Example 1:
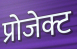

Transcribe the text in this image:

प्रोजेक्ट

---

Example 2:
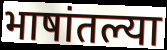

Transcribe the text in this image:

भाषांतल्या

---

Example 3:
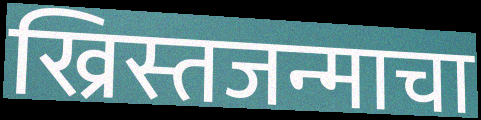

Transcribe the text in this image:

ख्रिस्तजन्माचा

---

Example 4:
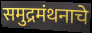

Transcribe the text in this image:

समुद्रमंथनाचे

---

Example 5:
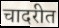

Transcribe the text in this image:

चादरीत